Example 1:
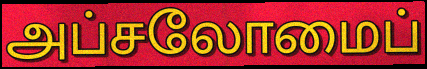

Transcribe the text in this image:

அப்சலோமைப்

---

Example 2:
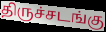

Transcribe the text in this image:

திருச்சடங்கு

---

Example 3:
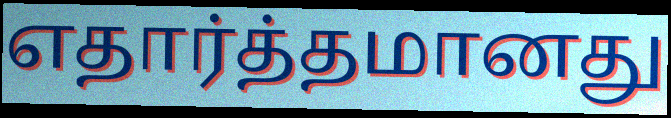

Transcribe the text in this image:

எதார்த்தமானது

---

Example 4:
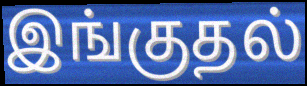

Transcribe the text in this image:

இங்குதல்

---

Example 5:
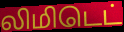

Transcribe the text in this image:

லிமிடெட்